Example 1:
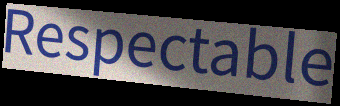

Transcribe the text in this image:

Respectable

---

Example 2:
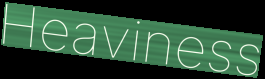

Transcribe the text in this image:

Heaviness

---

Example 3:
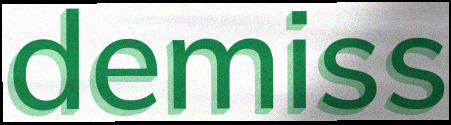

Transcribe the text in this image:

demiss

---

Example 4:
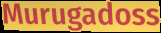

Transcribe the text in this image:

Murugadoss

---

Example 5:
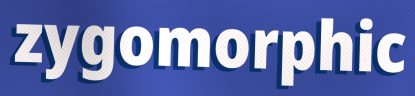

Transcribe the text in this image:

zygomorphic